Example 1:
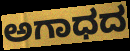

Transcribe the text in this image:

ಅಗಾಧದ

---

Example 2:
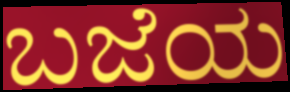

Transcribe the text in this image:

ಬಜೆಯ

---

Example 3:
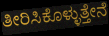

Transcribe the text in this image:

ತೀರಿಸಿಕೊಳ್ಳುತ್ತೇನೆ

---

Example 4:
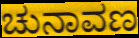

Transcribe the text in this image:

ಚುನಾವಣ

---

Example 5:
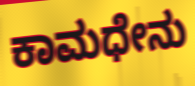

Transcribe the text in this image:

ಕಾಮಧೇನು